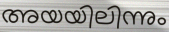
അയയിലിന്നും